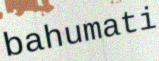
bahumati